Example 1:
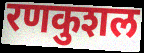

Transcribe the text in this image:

रणकुशल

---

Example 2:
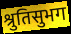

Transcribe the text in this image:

श्रुतिसुभग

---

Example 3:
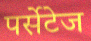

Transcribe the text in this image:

पर्सेटेज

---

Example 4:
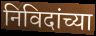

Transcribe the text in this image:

निविदांच्या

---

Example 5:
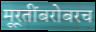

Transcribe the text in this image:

मूर्तींबरोबरच